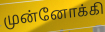
முன்னோக்கி